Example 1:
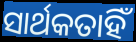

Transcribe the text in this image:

ସାର୍ଥକତାହିଁ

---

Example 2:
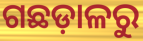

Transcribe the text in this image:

ଗଛଡ଼ାଳରୁ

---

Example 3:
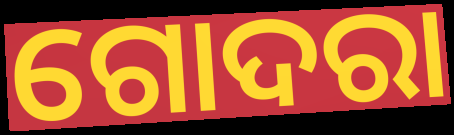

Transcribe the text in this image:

ଗୋଦରା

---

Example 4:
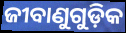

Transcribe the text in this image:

ଜୀବାଣୁଗୁଡ଼ିକ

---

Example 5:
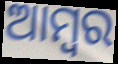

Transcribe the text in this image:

ଆମ୍ବର